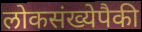
लोकसंख्येपैकी